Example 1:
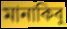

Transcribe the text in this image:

মানাকিবু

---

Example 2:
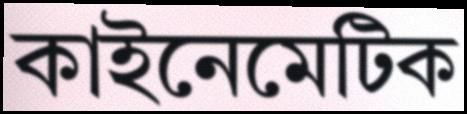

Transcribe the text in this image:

কাইনেমেটিক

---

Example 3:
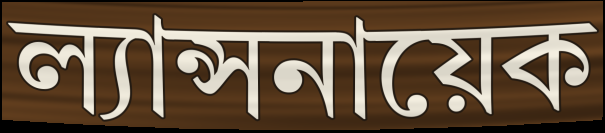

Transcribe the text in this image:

ল্যান্সনায়েক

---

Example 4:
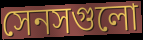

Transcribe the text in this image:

সেনসগুলো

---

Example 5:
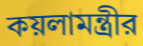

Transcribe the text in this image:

কয়লামন্ত্রীর